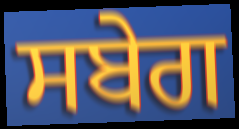
ਸਬੇਗ